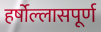
हर्षोल्लासपूर्ण